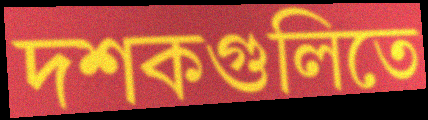
দশকগুলিতে